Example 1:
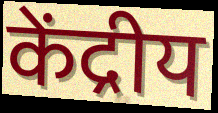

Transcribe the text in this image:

केंद्रीय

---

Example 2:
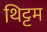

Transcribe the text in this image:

थिट्टम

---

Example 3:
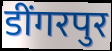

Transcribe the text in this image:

डींगरपुर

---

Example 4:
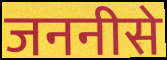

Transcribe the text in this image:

जननीसे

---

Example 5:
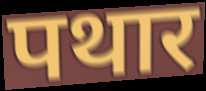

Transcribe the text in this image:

पथार